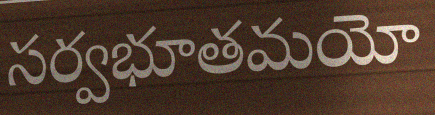
సర్వభూతమయో